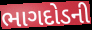
ભાગદોડની